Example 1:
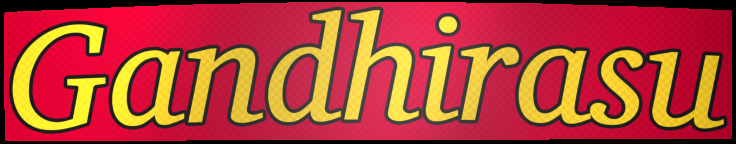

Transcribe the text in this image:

Gandhirasu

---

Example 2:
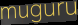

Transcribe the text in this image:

muguru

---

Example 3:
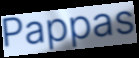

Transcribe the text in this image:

Pappas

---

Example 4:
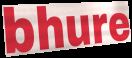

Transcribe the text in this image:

bhure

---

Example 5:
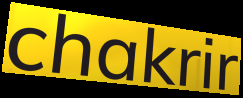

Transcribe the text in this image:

chakrir